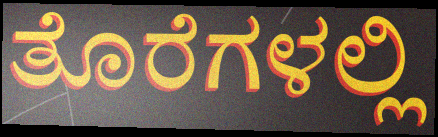
ತೊರೆಗಳಲ್ಲಿ